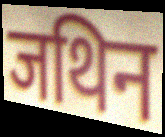
जथिन